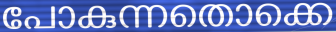
പോകുന്നതൊക്കെ